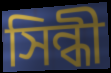
সিন্ধী